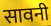
सावनी